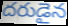
దరుడైన